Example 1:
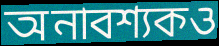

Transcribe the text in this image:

অনাবশ্যকও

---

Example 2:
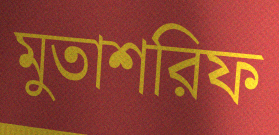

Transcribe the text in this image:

মুতাশরিফ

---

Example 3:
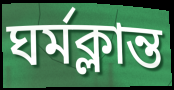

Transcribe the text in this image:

ঘর্মক্লান্ত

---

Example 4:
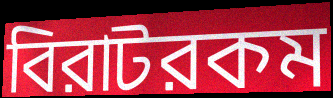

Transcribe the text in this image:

বিরাটরকম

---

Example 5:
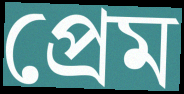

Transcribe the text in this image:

প্রেম